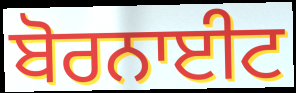
ਬੋਰਨਾਈਟ